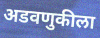
अडवणुकीला